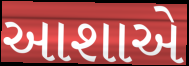
આશાએ